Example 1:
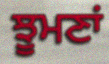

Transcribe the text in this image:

ਝੂਮਣਾਂ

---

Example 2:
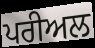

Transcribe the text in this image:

ਪਰੀਅਲ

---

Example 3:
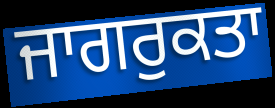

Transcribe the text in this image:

ਜਾਗਰੁਕਤਾ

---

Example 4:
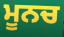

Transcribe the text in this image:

ਮੂਨਚ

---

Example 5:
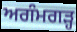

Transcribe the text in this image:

ਅਗੰਮਗੜ੍ਹ